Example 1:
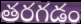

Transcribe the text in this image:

తరగడం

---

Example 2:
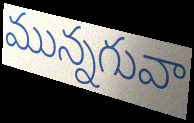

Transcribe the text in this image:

మున్నగువా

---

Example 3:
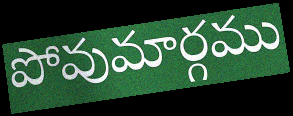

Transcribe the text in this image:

పోవుమార్గము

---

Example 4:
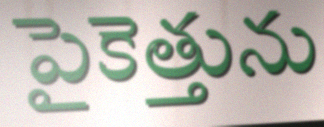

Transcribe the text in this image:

పైకెత్తును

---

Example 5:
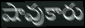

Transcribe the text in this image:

షావుకారు